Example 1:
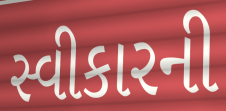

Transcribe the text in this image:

સ્વીકારની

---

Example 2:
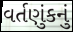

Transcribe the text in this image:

વર્તણુંકનું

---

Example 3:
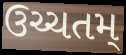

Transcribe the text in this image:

ઉચ્ચતમ્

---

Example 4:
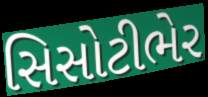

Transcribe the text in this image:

સિસોટીભેર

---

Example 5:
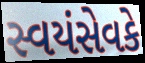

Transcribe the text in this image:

સ્વયંસેવકે